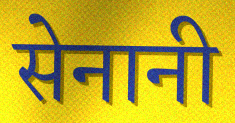
सेनानी